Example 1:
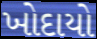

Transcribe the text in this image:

ખોદાયો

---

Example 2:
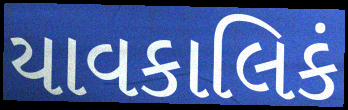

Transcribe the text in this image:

યાવકાલિકં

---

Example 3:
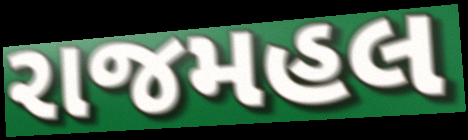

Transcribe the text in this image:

રાજમહલ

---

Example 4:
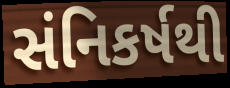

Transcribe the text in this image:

સંનિકર્ષથી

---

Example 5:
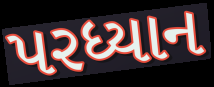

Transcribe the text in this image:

પરધ્યાન